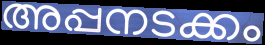
അപ്പനടക്കം